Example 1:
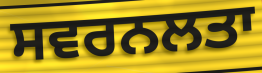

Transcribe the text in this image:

ਸਵਰਨਲਤਾ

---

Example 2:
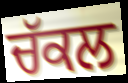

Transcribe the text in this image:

ਚੱਕਲ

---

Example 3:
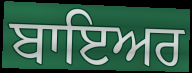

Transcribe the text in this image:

ਬਾਇਅਰ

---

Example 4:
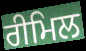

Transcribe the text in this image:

ਰੀਮਿਲ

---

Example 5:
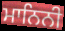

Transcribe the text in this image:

ਮਾਨਿਨੀ